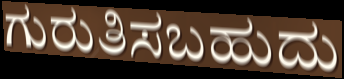
ಗುರುತಿಸಬಹುದು